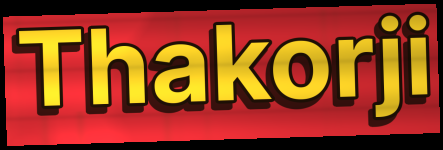
Thakorji